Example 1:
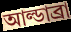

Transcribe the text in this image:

আল্ডাব্রা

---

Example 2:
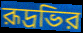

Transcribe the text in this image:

রূদ্রভির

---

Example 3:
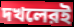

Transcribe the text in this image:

দখলেরই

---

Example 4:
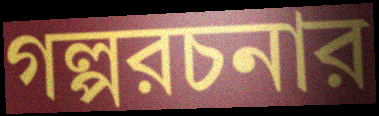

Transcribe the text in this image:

গল্পরচনার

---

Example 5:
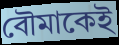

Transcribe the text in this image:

বৌমাকেই